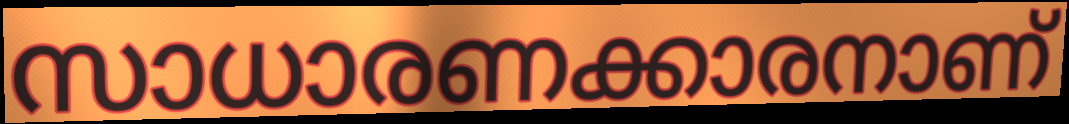
സാധാരണക്കാരനാണ്